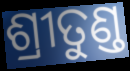
ଶ୍ରୀତୁଣ୍ଡ